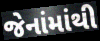
જેનાંમાંથી